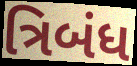
ત્રિબંધ